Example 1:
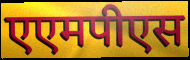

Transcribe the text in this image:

एएमपीएस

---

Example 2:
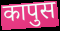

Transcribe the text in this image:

कापुस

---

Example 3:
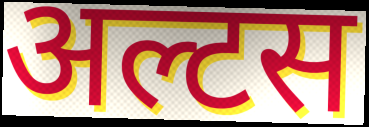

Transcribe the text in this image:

अल्टस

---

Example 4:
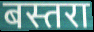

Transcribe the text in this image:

बस्तरा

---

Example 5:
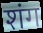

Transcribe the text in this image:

शंग